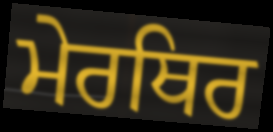
ਮੇਰਥਿਰ